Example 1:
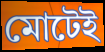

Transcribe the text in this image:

মোটেই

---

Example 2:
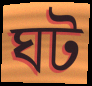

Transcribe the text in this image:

ঘট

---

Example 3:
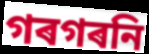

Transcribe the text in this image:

গৰগৰনি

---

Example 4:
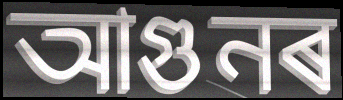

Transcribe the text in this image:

আগুনৰ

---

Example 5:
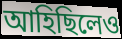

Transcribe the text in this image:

আহিছিলেও